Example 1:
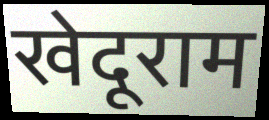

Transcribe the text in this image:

खेदूराम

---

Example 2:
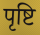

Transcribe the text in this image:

पृष्टि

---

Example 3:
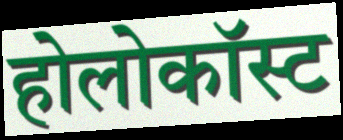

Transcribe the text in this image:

होलोकॉस्ट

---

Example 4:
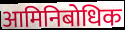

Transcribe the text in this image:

आमिनिबोधिक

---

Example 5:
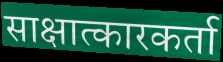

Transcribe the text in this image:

साक्षात्कारकर्ता